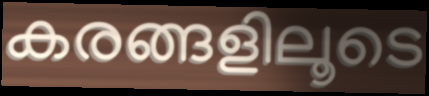
കരങ്ങളിലൂടെ